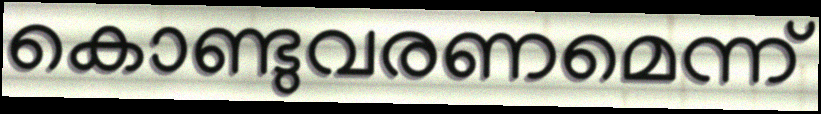
കൊണ്ടുവരണമെന്ന്